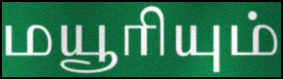
மயூரியும்